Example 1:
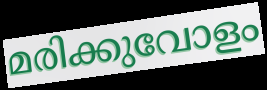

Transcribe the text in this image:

മരിക്കുവോളം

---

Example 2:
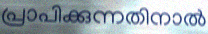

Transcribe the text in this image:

പ്രാപിക്കുന്നതിനാൽ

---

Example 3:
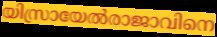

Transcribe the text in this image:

യിസ്രായേൽരാജാവിനെ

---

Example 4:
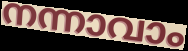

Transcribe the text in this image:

നന്നാവാം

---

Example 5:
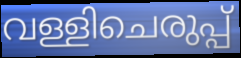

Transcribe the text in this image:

വള്ളിചെരുപ്പ്